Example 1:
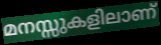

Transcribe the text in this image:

മനസ്സുകളിലാണ്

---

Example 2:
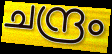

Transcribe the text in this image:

ചന്ദ്രം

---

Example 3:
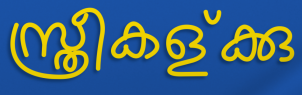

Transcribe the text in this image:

സ്ത്രീകള്ക്കു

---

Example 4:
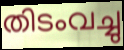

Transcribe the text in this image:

തിടംവച്ചു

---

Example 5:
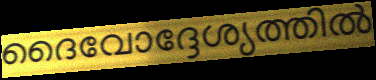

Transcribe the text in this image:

ദൈവോദ്ദേശ്യത്തിൽ